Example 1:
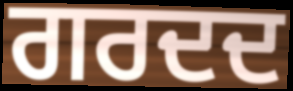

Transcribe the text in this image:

ਗਰਦਦ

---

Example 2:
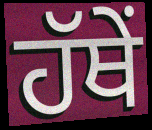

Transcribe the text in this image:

ਹੱਥੇਂ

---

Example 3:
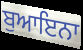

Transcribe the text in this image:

ਬੁਆਇਨਾ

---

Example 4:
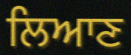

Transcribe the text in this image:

ਲਿਆਣ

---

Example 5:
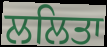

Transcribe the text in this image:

ਲਲਿਤਾ